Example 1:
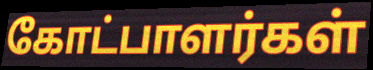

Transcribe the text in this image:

கோட்பாளர்கள்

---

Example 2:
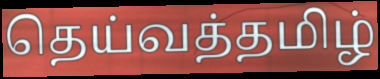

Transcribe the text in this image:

தெய்வத்தமிழ்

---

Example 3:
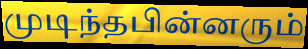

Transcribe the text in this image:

முடிந்தபின்னரும்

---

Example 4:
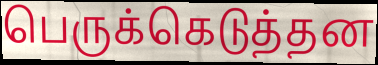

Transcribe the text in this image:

பெருக்கெடுத்தன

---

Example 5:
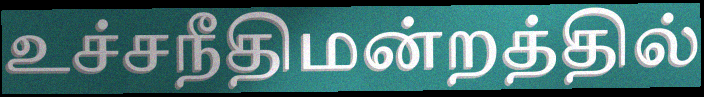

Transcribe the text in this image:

உச்சநீதிமன்றத்தில்